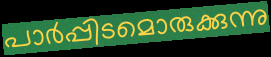
പാർപ്പിടമൊരുക്കുന്നു